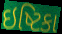
ઇષ્ટિકા